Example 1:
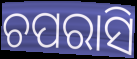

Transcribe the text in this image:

ଚପରାସି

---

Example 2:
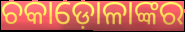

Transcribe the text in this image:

ଚକାଡ଼ୋଳାଙ୍କର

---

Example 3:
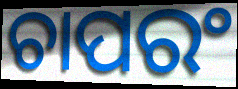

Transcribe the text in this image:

ଚାପରଂ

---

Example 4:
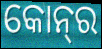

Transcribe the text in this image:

କୋନ୍‌ର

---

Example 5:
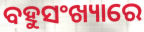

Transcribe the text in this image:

ବହୁସଂଖ୍ୟାରେ